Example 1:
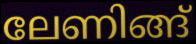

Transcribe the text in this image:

ലേണിങ്ങ്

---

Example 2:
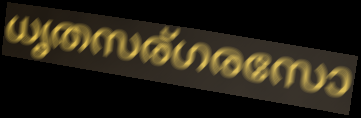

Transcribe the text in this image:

ധൃതസര്ഗരസോ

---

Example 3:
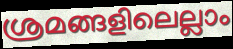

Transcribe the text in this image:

ശ്രമങ്ങളിലെല്ലാം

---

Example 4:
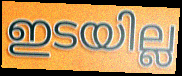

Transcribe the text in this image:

ഇടയില്ല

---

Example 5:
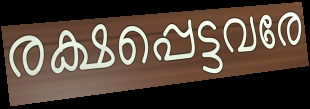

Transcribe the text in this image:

രക്ഷപ്പെട്ടവരേ